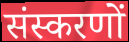
संस्करणों